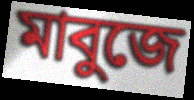
মাবুজে